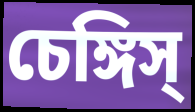
চেঙ্গিস্